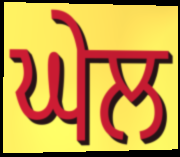
ਘੇਲ